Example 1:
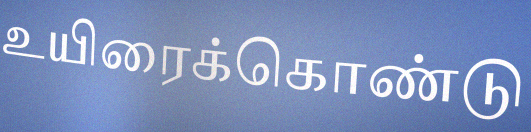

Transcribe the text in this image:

உயிரைக்கொண்டு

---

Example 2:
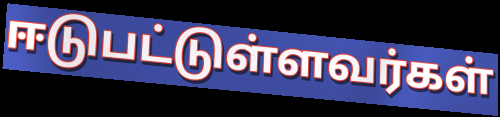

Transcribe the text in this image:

ஈடுபட்டுள்ளவர்கள்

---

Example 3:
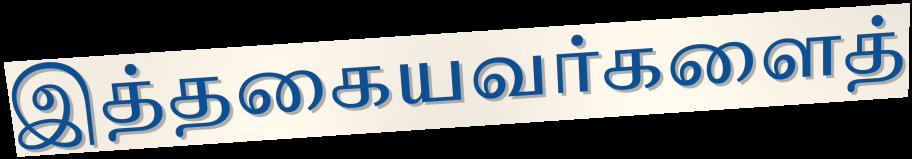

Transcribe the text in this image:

இத்தகையவர்களைத்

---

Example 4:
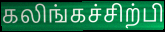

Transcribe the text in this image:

கலிங்கச்சிற்பி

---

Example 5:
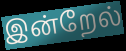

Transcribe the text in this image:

இன்றேல்